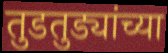
तुडतुड्यांच्या